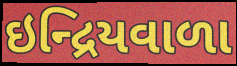
ઇન્દ્રિયવાળા